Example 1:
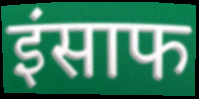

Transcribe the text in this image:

इंसाफ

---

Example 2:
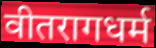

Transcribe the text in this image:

वीतरागधर्म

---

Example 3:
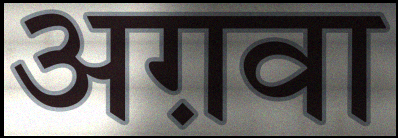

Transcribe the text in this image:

अग़वा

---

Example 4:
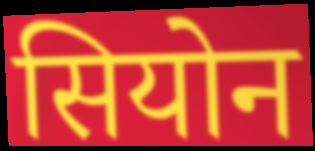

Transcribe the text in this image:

सियोन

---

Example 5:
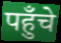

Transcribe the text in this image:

पहुँचे